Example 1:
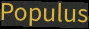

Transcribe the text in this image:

Populus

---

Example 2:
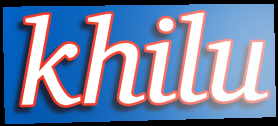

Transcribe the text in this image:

khilu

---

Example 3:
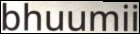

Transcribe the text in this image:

bhuumii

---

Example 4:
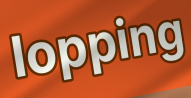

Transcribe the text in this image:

lopping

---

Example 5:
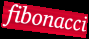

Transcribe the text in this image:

fibonacci